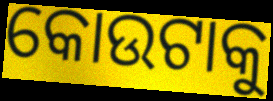
କୋଉଟାକୁ